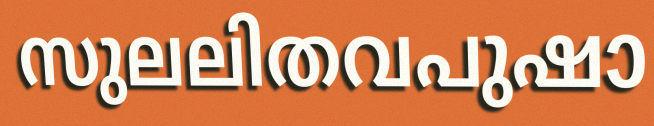
സുലലിതവപുഷാ